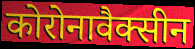
कोरोनावैक्सीन